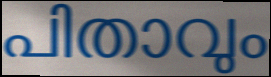
പിതാവും